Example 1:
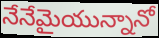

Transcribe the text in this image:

నేనేమైయున్నానో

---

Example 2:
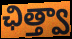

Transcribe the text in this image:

ఛిత్త్వా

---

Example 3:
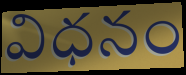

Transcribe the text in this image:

విధనం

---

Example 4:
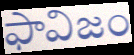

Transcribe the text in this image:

ఫావిజం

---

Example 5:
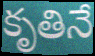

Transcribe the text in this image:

కృతినే